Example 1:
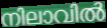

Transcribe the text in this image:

നിലാവിൽ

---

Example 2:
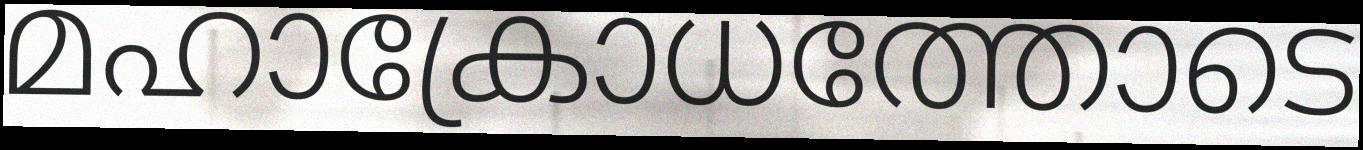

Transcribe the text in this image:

മഹാക്രോധത്തോടെ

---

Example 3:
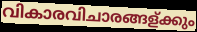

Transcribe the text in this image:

വികാരവിചാരങ്ങള്ക്കും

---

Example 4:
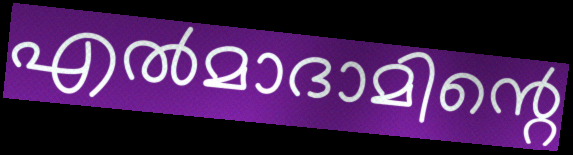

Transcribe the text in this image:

എൽമാദാമിന്റെ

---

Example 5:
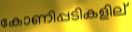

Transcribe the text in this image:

കോണിപ്പടികളില്